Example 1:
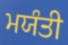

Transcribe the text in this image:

ਮਯੰਤੀ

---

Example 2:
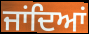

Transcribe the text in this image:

ਜਾਂਦਿਆਂ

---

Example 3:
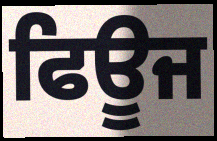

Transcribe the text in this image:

ਫਿਊਜ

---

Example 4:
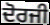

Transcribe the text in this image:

ਦੋਰਜੀ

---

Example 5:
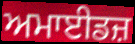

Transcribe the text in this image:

ਅਮਾਈਡਜ਼